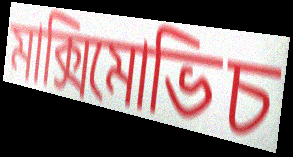
মাক্সিমোভিচ